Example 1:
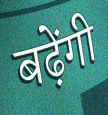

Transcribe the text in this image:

बढ़ेंगी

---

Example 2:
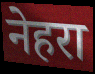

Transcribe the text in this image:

नेहरा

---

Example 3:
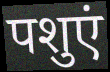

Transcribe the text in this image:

पशुएं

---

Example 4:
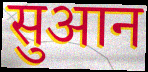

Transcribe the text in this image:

सुआन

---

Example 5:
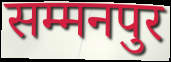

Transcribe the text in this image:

सम्मनपुर